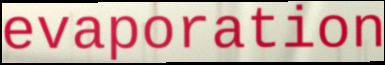
evaporation